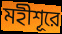
মহীশূরে